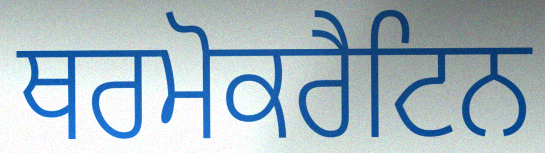
ਥਰਮੋਕਰੈਟਿਨ